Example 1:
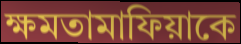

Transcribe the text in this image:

ক্ষমতামাফিয়াকে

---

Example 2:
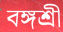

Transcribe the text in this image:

বঙ্গশ্রী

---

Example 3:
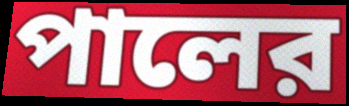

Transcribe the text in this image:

পালের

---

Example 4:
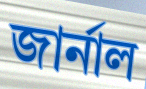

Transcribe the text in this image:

জার্নাল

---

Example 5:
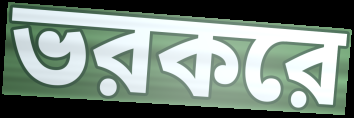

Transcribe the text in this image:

ভরকরে